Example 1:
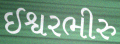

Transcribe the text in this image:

ઈશ્વરભીરુ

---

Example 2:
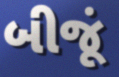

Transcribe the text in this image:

બીજૂં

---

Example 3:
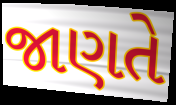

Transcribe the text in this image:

જાણતે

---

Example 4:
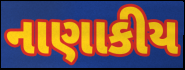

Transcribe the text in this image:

નાણાકીય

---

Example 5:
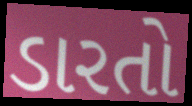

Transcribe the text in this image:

ડારતો